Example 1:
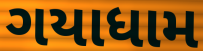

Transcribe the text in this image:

ગયાધામ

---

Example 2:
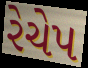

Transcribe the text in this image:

રેચેપ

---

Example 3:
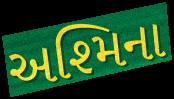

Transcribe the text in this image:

અશ્મિના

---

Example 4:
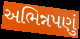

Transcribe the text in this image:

અભિન્નપણું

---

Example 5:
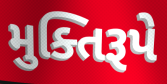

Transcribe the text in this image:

મુક્તિરૂપે